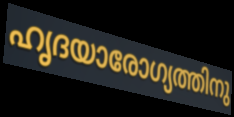
ഹൃദയാരോഗ്യത്തിനു